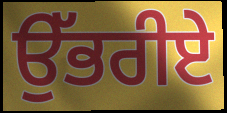
ਉੱਭਰੀਏ